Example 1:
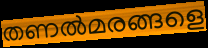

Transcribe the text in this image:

തണൽമരങ്ങളെ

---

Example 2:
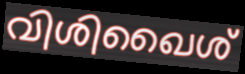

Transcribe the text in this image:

വിശിഖൈശ്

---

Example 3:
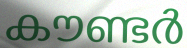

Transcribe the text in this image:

കൗണ്ടർ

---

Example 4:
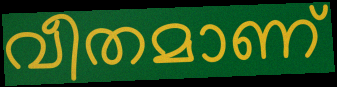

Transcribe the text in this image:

വീതമാണ്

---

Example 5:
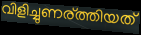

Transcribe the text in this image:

വിളിച്ചുണര്ത്തിയത്